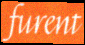
furent